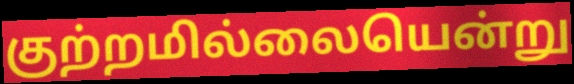
குற்றமில்லையென்று